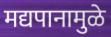
मद्यपानामुळे